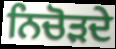
ਨਿਚੋੜਦੇ